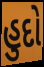
હુદો